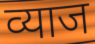
व्याज